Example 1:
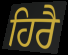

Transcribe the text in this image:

ਹਿਰੈ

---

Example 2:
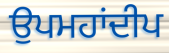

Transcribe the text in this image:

ਉਪਮਹਾਂਦੀਪ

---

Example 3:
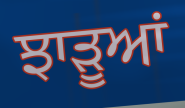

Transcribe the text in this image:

ਝਾੜੂਆਂ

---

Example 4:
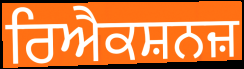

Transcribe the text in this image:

ਰਿਐਕਸ਼ਨਜ਼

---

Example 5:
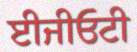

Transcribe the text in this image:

ਈਜੀਓਟੀ